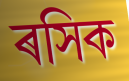
ৰসিক